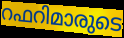
റഫറിമാരുടെ